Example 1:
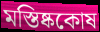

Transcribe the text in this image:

মস্তিষ্ককোষ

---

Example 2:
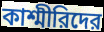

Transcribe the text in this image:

কাশ্মীরিদের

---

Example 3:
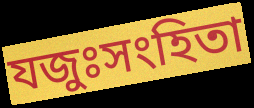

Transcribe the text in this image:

যজুঃসংহিতা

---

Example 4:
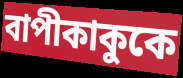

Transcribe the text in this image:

বাপীকাকুকে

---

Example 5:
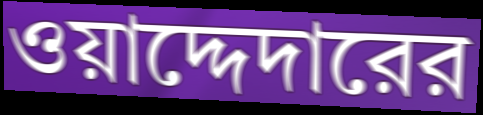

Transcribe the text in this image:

ওয়াদ্দেদারের